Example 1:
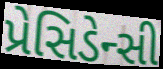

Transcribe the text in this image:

પ્રેસિડેન્સી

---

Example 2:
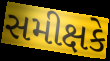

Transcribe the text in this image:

સમીક્ષકે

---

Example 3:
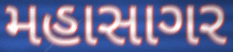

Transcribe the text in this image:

મહાસાગર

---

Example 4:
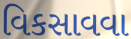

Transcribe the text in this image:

વિકસાવવા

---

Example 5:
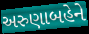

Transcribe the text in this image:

અરુણાબહેને